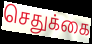
செதுக்கை